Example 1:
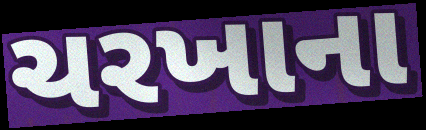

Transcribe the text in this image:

ચરખાના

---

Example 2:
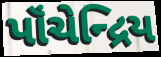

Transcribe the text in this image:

પૉંચેન્દ્રિય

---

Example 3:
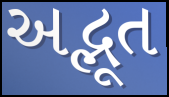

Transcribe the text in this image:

અદ્ભૂત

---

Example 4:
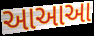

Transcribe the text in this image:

આઆઆ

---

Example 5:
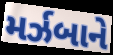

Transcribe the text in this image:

મર્ઝબાને